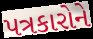
પત્રકારોને